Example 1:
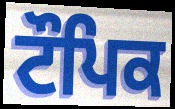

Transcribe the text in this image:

ਟੌਪਿਕ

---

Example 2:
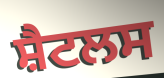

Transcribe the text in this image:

ਸ਼ੈਟਲਸ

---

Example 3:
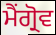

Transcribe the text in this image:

ਮੈਂਗ੍ਰੋਵ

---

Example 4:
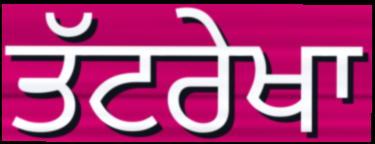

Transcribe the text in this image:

ਤੱਟਰੇਖਾ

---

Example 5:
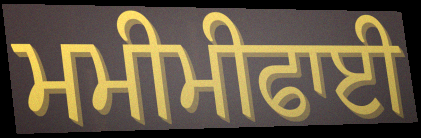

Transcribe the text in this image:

ਮਮੀਮੀਫਾਈ